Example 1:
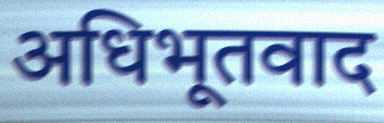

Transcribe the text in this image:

अधिभूतवाद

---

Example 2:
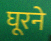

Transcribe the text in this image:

घूरने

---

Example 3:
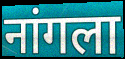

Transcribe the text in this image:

नांगला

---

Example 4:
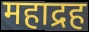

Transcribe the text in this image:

महाद्रह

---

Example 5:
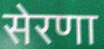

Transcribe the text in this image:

सेरणा